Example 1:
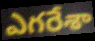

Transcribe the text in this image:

ఎగరేశా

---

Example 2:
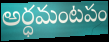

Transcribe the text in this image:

అర్ధమంటపం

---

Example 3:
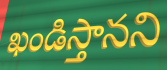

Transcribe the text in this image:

ఖండిస్తానని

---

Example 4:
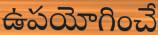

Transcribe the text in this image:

ఉపయోగించే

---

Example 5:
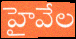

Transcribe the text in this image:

హైవేల